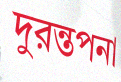
দুরন্তপনা